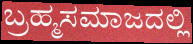
ಬ್ರಹ್ಮಸಮಾಜದಲ್ಲಿ